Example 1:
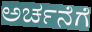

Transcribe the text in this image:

ಅರ್ಚನೆಗೆ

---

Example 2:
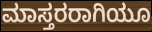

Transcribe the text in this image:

ಮಾಸ್ತರರಾಗಿಯೂ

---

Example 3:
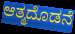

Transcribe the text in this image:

ಆತ್ಮದೊಡನೆ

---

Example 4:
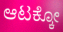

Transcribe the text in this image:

ಆಟಕ್ಕೋ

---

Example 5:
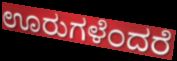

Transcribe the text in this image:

ಊರುಗಳೆಂದರೆ